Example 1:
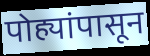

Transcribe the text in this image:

पोह्यांपासून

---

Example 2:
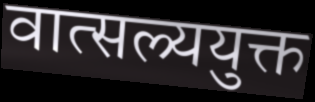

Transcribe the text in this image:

वात्सल्ययुक्त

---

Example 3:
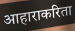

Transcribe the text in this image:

आहाराकरिता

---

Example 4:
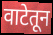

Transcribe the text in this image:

वाटेतून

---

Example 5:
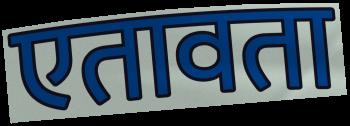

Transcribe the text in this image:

एतावता